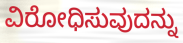
ವಿರೋಧಿಸುವುದನ್ನು